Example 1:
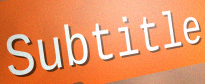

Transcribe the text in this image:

Subtitle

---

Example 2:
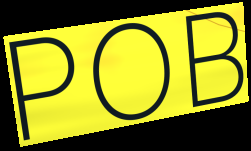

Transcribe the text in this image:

POB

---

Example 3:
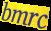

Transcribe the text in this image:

bmrc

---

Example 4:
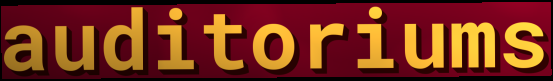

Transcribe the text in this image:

auditoriums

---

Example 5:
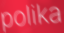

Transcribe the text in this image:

polika